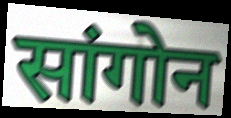
सांगोन